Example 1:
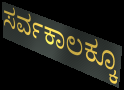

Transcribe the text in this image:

ಸರ್ವಕಾಲಕ್ಕೂ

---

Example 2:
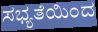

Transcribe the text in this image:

ಸಭ್ಯತೆಯಿಂದ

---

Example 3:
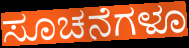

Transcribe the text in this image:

ಸೂಚನೆಗಳೂ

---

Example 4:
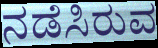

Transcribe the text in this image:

ನಡೆಸಿರುವ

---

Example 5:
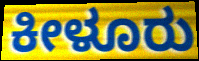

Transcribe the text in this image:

ಕೀಳೂರು